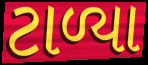
ટાળ્યા